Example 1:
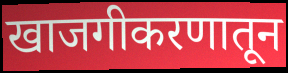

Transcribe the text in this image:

खाजगीकरणातून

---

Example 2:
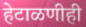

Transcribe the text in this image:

हेटाळणीही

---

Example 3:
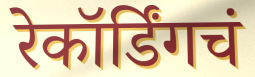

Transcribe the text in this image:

रेकॉर्डिंगचं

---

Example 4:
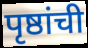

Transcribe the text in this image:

पृष्ठांची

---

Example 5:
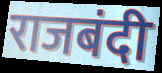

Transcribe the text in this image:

राजबंदी